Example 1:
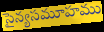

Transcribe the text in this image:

సైన్యసమూహము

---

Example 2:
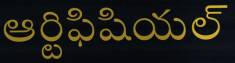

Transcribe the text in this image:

ఆర్టిఫిషియల్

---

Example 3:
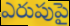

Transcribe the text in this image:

ఎరుపుపై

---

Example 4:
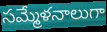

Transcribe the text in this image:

సమ్మేళనాలుగా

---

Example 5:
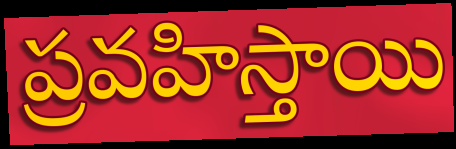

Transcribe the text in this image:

ప్రవహిస్తాయి